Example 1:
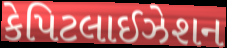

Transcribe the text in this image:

કેપિટલાઈઝેશન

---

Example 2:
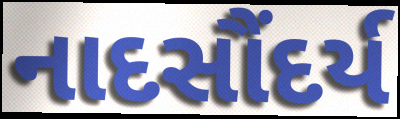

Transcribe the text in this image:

નાદસૌંદર્ય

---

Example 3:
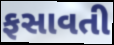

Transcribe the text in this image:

ફસાવતી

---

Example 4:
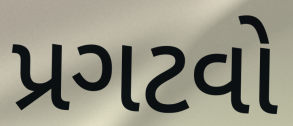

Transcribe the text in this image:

પ્રગટવો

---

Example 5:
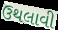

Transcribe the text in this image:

ઉથલાવી